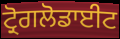
ਟ੍ਰੋਗਲੋਡਾਈਟ